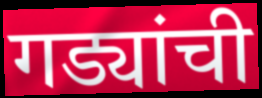
गड्यांची